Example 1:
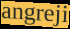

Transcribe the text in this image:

angreji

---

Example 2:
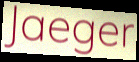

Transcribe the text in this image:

Jaeger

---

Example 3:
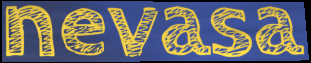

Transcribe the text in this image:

nevasa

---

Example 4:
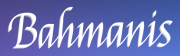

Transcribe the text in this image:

Bahmanis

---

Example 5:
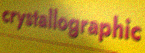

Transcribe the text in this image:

crystallographic